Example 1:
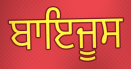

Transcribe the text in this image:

ਬਾਇਜੂਸ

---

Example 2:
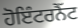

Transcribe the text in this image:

ਹੋਇੰਟਰਨੈੱਟ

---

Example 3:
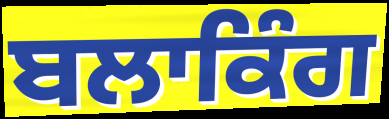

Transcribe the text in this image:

ਬਲਾਕਿੰਗ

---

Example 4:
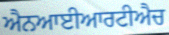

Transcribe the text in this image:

ਐਨਆਈਆਰਟੀਐਚ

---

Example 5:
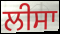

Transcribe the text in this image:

ਲੀਸਾ